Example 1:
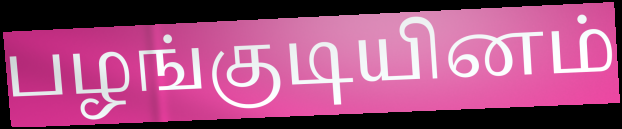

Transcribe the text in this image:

பழங்குடியினம்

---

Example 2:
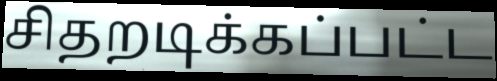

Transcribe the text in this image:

சிதறடிக்கப்பட்ட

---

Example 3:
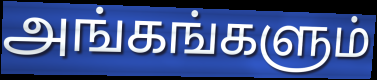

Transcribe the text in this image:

அங்கங்களும்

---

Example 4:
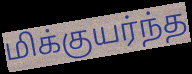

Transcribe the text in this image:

மிக்குயர்ந்த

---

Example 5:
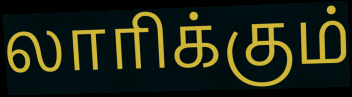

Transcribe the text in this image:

லாரிக்கும்